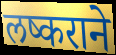
लष्कराने